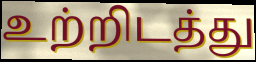
உற்றிடத்து